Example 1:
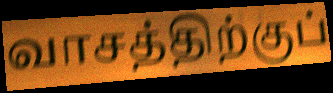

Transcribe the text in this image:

வாசத்திற்குப்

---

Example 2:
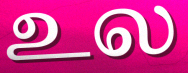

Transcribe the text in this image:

உல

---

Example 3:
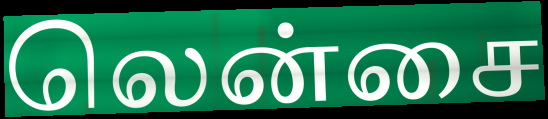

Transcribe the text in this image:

லென்சை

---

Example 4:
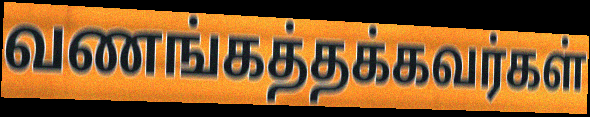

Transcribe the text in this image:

வணங்கத்தக்கவர்கள்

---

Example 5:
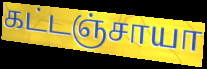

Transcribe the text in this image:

கட்டஞ்சாயா